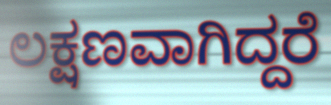
ಲಕ್ಷಣವಾಗಿದ್ದರೆ